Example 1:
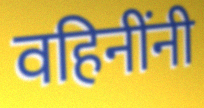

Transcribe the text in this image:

वहिनींनी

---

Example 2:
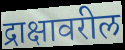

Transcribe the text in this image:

द्राक्षावरील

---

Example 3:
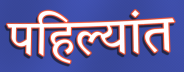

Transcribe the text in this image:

पहिल्यांत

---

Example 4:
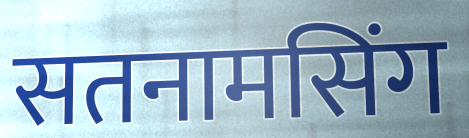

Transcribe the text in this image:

सतनामसिंग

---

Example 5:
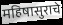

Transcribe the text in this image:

महिषासुराचे